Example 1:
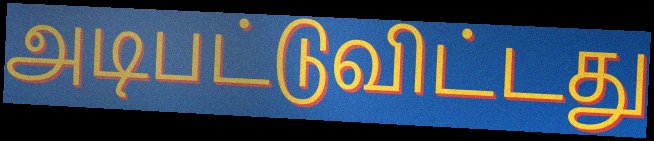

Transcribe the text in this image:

அடிபட்டுவிட்டது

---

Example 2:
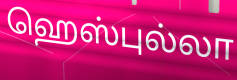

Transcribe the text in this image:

ஹெஸ்புல்லா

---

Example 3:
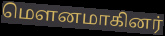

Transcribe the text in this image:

மௌனமாகினர்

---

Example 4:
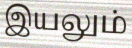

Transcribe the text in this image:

இயலும்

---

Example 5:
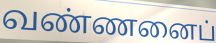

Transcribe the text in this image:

வண்ணனைப்